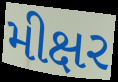
મીક્ષર